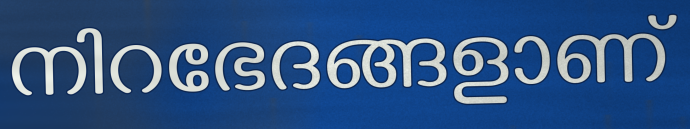
നിറഭേദങ്ങളാണ്